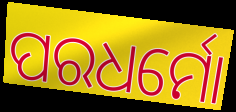
ପରଧର୍ମୋ